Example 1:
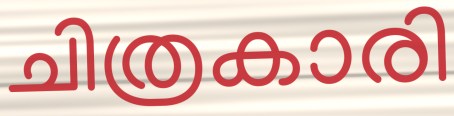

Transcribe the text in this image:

ചിത്രകാരി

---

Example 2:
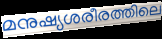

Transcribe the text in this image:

മനുഷ്യശരീരത്തിലെ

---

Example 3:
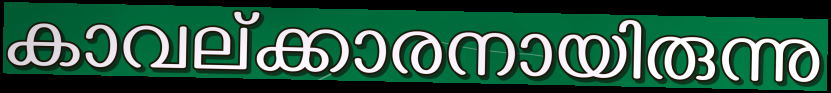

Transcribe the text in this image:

കാവല്ക്കാരനായിരുന്നു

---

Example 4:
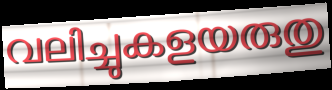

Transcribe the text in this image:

വലിച്ചുകളയരുതു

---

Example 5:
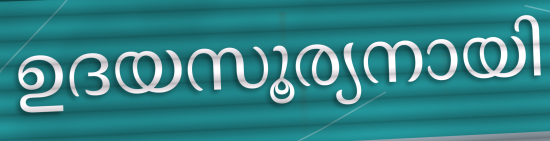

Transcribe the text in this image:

ഉദയസൂര്യനായി